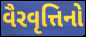
વૈરવૃત્તિનો